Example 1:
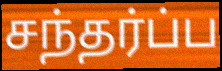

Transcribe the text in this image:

சந்தர்ப்ப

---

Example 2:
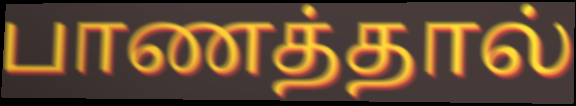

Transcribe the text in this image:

பாணத்தால்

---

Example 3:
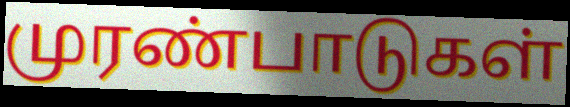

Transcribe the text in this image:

முரண்பாடுகள்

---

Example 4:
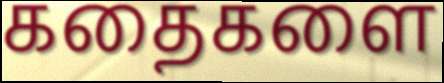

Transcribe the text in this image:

கதைகளை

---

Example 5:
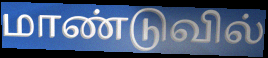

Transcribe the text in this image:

மாண்டுவில்